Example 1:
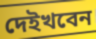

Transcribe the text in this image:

দেইখবেন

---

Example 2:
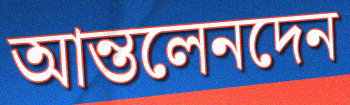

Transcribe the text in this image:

আন্তলেনদেন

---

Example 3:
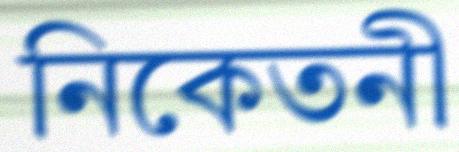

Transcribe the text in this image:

নিকেতনী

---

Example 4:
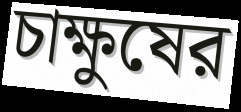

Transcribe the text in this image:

চাক্ষুষের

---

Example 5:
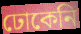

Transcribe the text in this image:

ঢোকেনি